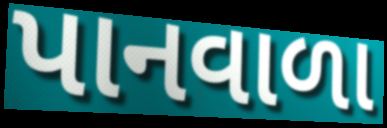
પાનવાળા